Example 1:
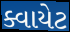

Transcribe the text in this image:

ક્વાયેટ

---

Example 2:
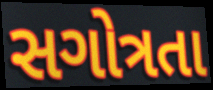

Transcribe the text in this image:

સગોત્રતા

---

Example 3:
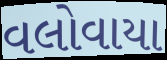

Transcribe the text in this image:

વલોવાયા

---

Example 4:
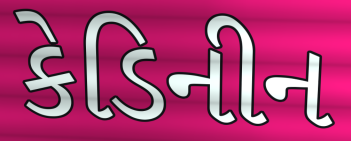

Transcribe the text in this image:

કેડિનીન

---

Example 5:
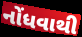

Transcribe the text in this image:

નોંધવાથી